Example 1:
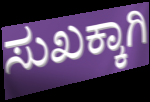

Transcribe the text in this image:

ಸುಖಕ್ಕಾಗಿ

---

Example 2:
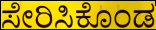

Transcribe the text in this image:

ಸೇರಿಸಿಕೊಂಡ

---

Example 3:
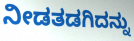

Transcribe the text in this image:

ನೀಡತಡಗಿದನ್ನು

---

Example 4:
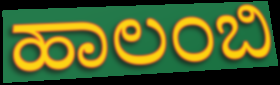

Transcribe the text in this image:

ಹಾಲಂಬಿ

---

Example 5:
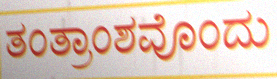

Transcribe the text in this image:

ತಂತ್ರಾಂಶವೊಂದು